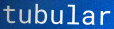
tubular